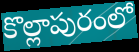
కొల్లాపురంలో